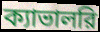
ক্যাভালরি